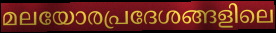
മലയോരപ്രദേശങ്ങളിലെ